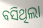
ବସିଥିଲା